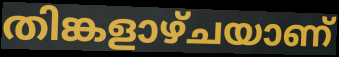
തിങ്കളാഴ്ചയാണ്